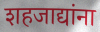
शहजाद्यांना